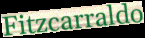
Fitzcarraldo